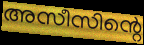
അസീസിന്റെ